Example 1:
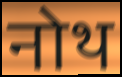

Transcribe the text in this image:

नोथ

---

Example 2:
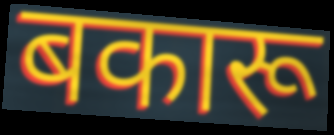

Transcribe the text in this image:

बकारू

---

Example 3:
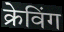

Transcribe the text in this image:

क्रेविंग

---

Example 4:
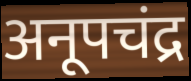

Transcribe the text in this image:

अनूपचंद्र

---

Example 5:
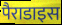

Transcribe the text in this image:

पैराडाइस